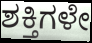
ಶಕ್ತಿಗಳೇ